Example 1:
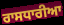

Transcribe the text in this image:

ਰਾਸਧਾਰੀਆ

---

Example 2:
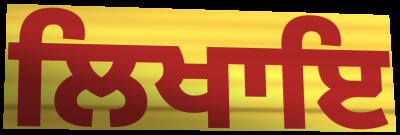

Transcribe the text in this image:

ਲਿਖਾਇ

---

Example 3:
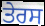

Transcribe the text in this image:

ਤੇਰਸ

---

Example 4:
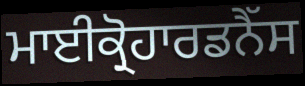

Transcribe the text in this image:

ਮਾਈਕ੍ਰੋਹਾਰਡਨੈੱਸ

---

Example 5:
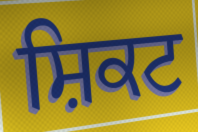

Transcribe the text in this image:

ਸ਼ਿਕਟ